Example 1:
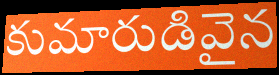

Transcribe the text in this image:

కుమారుడివైన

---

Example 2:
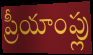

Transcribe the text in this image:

ప్రీయాంప్లు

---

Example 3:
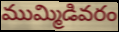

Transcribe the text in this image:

ముమ్మిడివరం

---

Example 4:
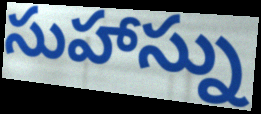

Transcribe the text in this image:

సుహాస్ను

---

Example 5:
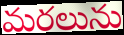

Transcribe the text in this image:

మరలును